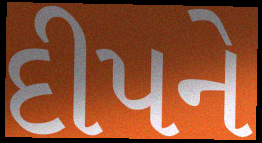
દીપને